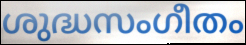
ശുദ്ധസംഗീതം